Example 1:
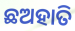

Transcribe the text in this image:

ଛଅହାତି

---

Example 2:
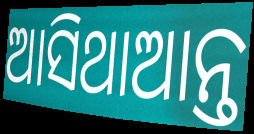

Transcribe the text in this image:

ଆସିଥାଆନ୍ତ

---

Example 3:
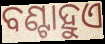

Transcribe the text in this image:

ବଣ୍ଟାହୁଏ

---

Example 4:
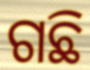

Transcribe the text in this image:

ଗଛି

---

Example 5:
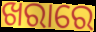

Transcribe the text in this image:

ଖରାରେ